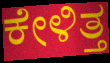
ಕೇಳಿತ್ತ